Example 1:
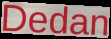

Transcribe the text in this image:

Dedan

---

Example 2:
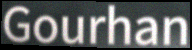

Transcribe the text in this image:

Gourhan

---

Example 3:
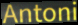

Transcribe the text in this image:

Antoni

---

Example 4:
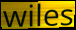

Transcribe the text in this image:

wiles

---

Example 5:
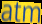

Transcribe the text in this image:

atm